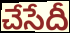
చేసేదీ